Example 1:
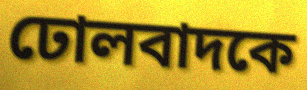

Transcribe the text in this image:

ঢোলবাদকে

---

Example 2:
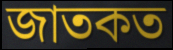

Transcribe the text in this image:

জাতকত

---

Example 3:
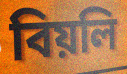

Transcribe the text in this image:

বিয়লি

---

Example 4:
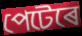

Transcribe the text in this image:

পেটেৰে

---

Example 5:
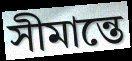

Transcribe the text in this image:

সীমান্তে